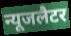
न्यूजलैटर